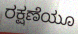
ರಕ್ಷಣೆಯೂ